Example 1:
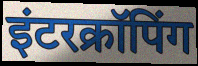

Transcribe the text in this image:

इंटरक्रॉपिंग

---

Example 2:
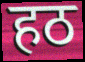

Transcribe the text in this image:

हठ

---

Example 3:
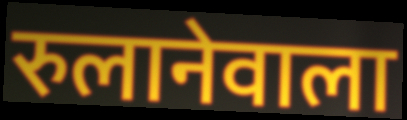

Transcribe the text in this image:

रुलानेवाला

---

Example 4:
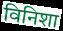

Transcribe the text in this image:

विनिशा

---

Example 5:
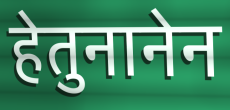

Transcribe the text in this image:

हेतुनानेन